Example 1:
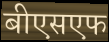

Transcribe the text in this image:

बीएसएफ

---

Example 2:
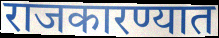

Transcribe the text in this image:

राजकारण्यात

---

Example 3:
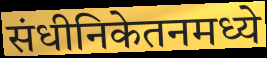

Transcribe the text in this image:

संधीनिकेतनमध्ये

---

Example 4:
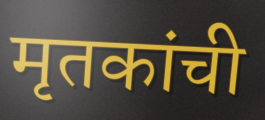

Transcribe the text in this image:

मृतकांची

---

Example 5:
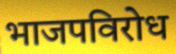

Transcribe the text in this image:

भाजपविरोध